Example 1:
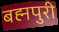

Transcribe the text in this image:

बह्मपुरी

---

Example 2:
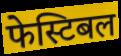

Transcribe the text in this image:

फेस्टिबल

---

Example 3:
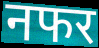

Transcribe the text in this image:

नफर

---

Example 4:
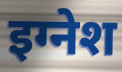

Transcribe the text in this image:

इग्नेश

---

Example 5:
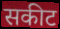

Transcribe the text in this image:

सकीट